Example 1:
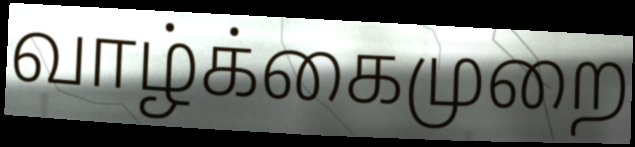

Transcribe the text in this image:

வாழ்க்கைமுறை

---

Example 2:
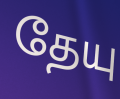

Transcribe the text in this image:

தேயு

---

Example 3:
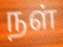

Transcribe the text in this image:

நள்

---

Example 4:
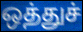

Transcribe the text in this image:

ஒத்துச்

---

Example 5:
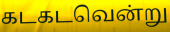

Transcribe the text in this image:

கடகடவென்று